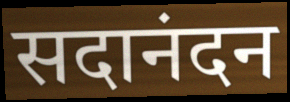
सदानंदन